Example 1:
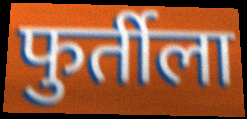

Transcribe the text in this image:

फुर्तीला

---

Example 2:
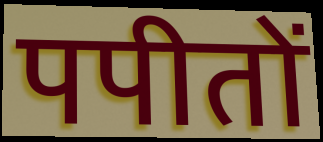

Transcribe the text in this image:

पपीतों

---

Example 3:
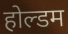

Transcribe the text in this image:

होल्डम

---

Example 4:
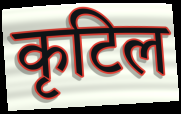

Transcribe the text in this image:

कृटिल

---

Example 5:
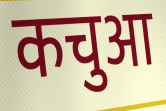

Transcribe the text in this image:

कचुआ